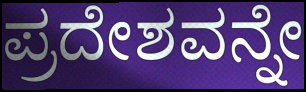
ಪ್ರದೇಶವನ್ನೇ